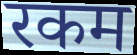
रकम